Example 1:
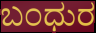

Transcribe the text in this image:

ಬಂಧುರ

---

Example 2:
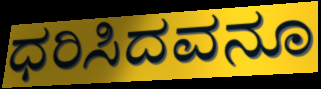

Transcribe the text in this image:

ಧರಿಸಿದವನೂ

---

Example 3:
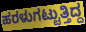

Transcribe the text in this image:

ಹರಳುಗಟ್ಟುತ್ತಿದ್ದ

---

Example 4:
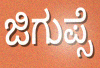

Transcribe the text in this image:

ಜಿಗುಪ್ಸೆ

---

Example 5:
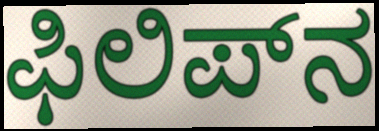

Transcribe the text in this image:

ಫಿಲಿಪ್‌ನ